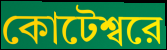
কোটেশ্বরে